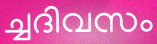
ച്ചദിവസം